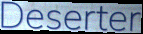
Deserter